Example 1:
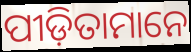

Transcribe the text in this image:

ପୀଡ଼ିତାମାନେ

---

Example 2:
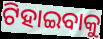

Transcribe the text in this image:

ଟିହାଇବାକୁ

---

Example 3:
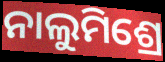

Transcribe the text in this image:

ନାଲୁମିଶ୍ରେ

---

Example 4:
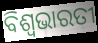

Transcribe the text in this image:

ବିଶ୍ୱଭାରତୀ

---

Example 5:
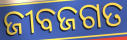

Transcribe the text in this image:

ଜୀବଜଗତ